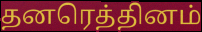
தனரெத்தினம்